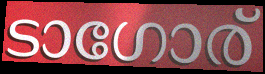
ടാഗോര്